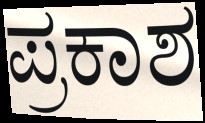
ಪ್ರಕಾಶ